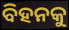
ବିହନକୁ